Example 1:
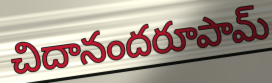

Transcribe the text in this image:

చిదానందరూపామ్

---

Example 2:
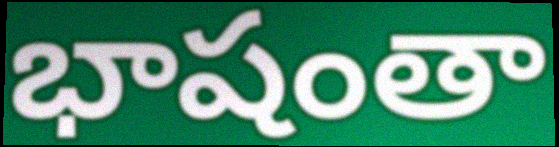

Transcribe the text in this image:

భాషంతా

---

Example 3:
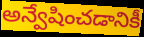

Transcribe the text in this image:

అన్వేషించడానికీ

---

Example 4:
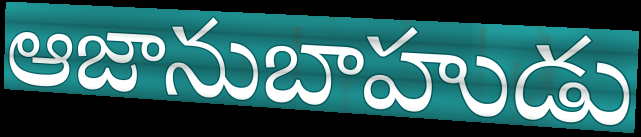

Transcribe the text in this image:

ఆజానుబాహుడు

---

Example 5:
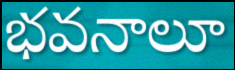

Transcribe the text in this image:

భవనాలూ